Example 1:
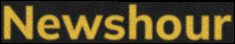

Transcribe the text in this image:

Newshour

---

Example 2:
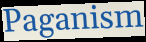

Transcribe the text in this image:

Paganism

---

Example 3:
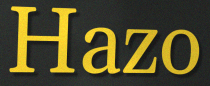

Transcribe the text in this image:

Hazo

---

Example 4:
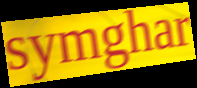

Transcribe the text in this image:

symghar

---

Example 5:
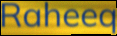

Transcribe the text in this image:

Raheeq